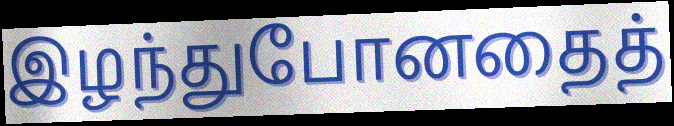
இழந்துபோனதைத்